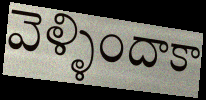
వెళ్ళిందాకా